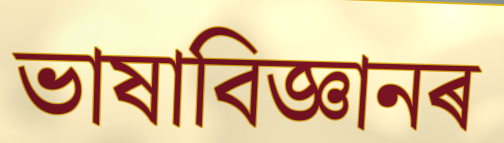
ভাষাবিজ্ঞানৰ